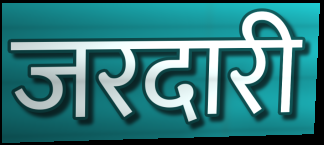
जरदारी